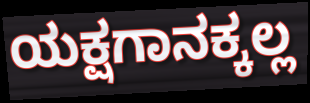
ಯಕ್ಷಗಾನಕ್ಕಲ್ಲ